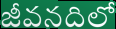
జీవనదిలో